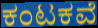
ಕಂಟಕವೆ